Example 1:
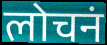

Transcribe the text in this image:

लोचनं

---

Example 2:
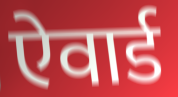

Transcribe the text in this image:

ऐवार्ड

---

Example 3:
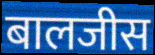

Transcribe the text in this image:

बालजीस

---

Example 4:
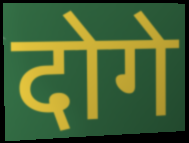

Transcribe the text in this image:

दोगे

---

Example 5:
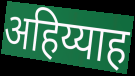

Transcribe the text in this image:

अहिय्याह